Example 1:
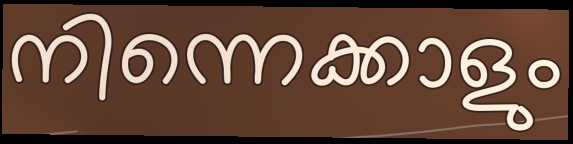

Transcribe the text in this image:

നിന്നെക്കാളും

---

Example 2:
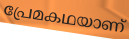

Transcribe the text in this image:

പ്രേമകഥയാണ്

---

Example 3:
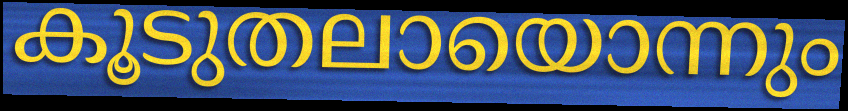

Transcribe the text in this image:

കൂടുതലായൊന്നും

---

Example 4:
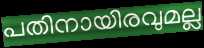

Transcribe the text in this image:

പതിനായിരവുമല്ല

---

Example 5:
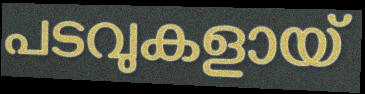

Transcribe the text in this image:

പടവുകളായ്